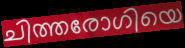
ചിത്തരോഗിയെ